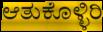
ಆತುಕೊಳ್ಳಿರಿ